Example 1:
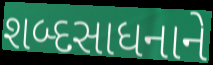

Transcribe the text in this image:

શબ્દસાધનાને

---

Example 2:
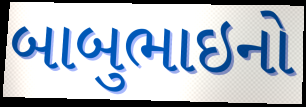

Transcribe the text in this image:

બાબુભાઇનો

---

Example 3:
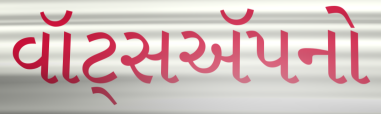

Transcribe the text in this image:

વૉટ્સઍપનો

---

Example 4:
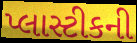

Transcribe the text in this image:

પ્લાસ્ટીકની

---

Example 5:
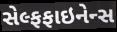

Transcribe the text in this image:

સેલ્ફફાઇનેન્સ